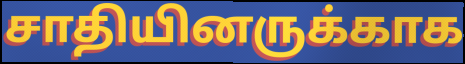
சாதியினருக்காக